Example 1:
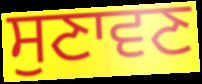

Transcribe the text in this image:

ਸੁਣਾਵਣ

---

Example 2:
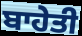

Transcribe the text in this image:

ਬਾਹੇਤੀ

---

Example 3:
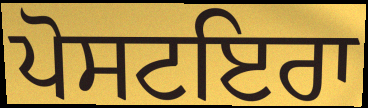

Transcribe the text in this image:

ਪੋਸਟਇਰਾ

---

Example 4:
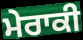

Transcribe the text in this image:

ਮੇਰਾਕੀ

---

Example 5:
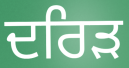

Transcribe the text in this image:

ਦਰਿੜ